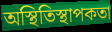
অস্থিতিস্থাপকতা